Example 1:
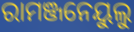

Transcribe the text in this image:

ରାମଞ୍ଜନେୟୁଲୁ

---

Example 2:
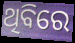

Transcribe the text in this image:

ଥିବିରେ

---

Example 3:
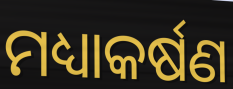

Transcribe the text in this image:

ମଧ୍ୟାକର୍ଷଣ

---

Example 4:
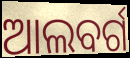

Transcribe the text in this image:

ଆଲବର୍ଗ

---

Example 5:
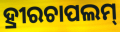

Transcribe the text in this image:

ହ୍ରୀରଚାପଲମ୍